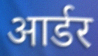
आर्डर